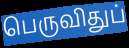
பெருவிதுப்